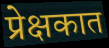
प्रेक्षकात